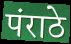
पंराठे